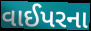
વાઈપરના